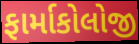
ફાર્માકોલોજી